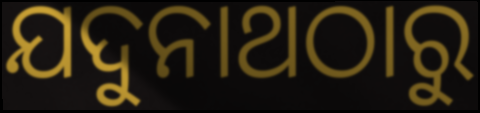
ଯଦୁନାଥଠାରୁ